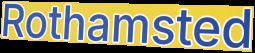
Rothamsted